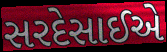
સરદેસાઈએ